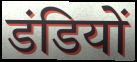
डंडियों